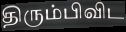
திரும்பிவிட